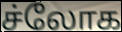
ச்லோக